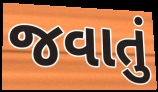
જવાતું